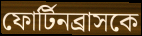
ফোর্টিনব্রাসকে